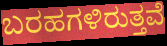
ಬರಹಗಳಿರುತ್ತವೆ